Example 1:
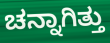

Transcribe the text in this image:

ಚನ್ನಾಗಿತ್ತು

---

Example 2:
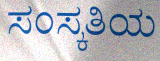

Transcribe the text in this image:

ಸಂಸ್ಕತಿಯ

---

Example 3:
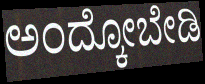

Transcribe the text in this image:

ಅಂದ್ಕೋಬೇಡಿ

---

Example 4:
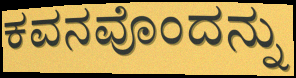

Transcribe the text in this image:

ಕವನವೊಂದನ್ನು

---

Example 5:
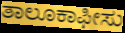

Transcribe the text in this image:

ತಾಲೂಕಾಫೀಸು